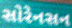
સોરેનસન